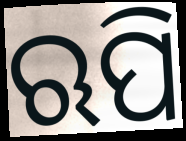
ଋପି